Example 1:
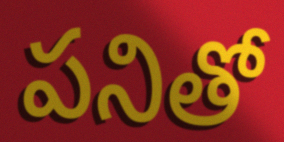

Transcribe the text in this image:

పనితో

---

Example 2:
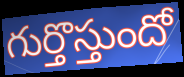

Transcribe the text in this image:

గుర్తొస్తుందో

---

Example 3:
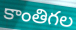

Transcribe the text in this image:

కాంతిగల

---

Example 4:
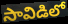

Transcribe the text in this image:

సావిడిలో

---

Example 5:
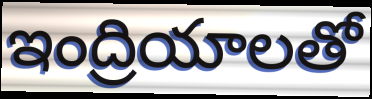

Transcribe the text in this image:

ఇంద్రియాలతో